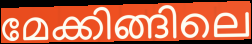
മേക്കിങ്ങിലെ